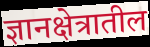
ज्ञानक्षेत्रातील